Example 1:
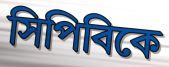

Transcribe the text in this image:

সিপিবিকে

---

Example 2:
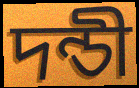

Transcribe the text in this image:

দন্ডী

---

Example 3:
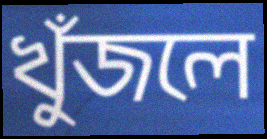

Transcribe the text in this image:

খুঁজলে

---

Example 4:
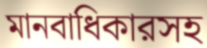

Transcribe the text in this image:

মানবাধিকারসহ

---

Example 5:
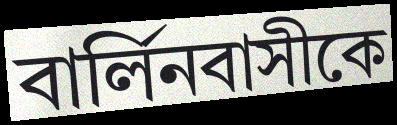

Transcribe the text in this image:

বার্লিনবাসীকে